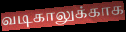
வடிகாலுக்காக